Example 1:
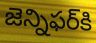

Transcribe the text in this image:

జెన్నిఫర్‌కి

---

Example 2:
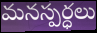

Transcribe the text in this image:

మనస్పర్ధలు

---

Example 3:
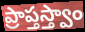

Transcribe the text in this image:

ప్రాప్తస్త్వాం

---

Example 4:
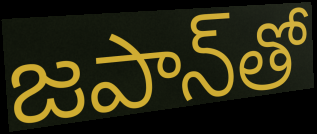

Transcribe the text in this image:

జపాన్‌తో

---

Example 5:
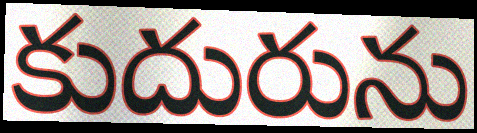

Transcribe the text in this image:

కుదురును